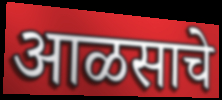
आळसाचे